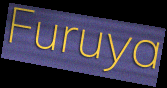
Furuya